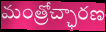
మంత్రోచ్ఛారణ